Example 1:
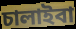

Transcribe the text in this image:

চালাইবা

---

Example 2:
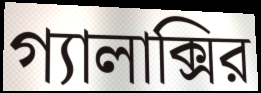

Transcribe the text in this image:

গ্যালাক্সির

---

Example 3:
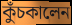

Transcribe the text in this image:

কুঁচকালেন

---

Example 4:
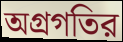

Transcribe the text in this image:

অগ্রগতির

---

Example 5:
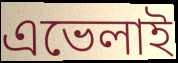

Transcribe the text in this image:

এভেলাই